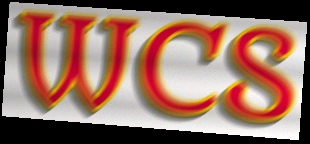
WCS